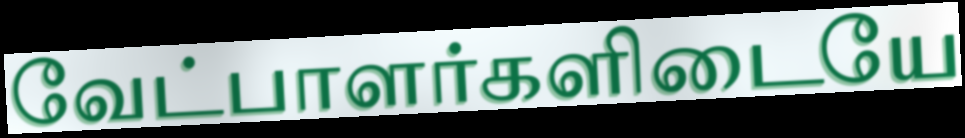
வேட்பாளர்களிடையே